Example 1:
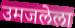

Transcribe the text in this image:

उमजलेला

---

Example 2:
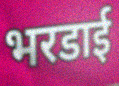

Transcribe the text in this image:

भरडाई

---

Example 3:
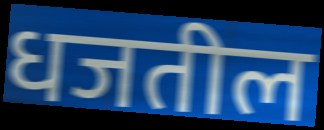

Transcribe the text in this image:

धजतील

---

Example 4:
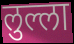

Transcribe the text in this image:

लुल्ला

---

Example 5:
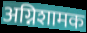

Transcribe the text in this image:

अग्निशामक